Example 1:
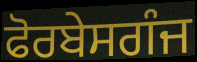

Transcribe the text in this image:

ਫੋਰਬੇਸਗੰਜ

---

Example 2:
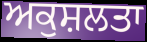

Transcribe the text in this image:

ਅਕੁਸ਼ਲਤਾ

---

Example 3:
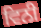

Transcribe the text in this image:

ਵਿਨੀ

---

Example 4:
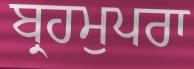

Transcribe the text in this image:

ਬ੍ਰਹਮੁਪਰਾ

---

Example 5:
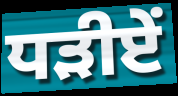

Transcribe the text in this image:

ਧੜੀਏਂ